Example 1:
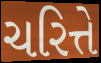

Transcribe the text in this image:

ચરિત્તે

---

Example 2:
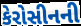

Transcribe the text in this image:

કેરોસીનની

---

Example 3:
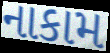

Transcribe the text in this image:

નાકામ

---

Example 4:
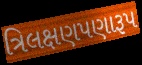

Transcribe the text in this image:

ત્રિલક્ષણપણારૂપ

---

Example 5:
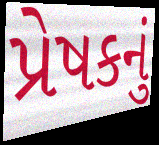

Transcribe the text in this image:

પ્રેષકનું